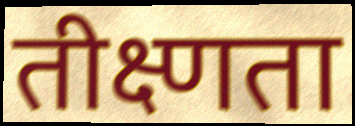
तीक्ष्णता